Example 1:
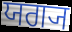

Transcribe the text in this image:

ਯਗ੍ਯ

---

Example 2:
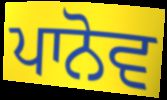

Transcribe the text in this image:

ਪਾਨੋਵ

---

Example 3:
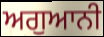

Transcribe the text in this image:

ਅਗੁਆਨੀ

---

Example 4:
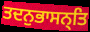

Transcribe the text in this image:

ਤਦਨੁਭਾਸਨ੍ਤਿ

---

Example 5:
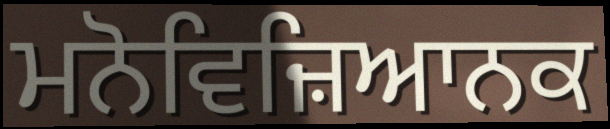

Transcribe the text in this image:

ਮਨੋਵਿਜ਼ਿਆਨਕ